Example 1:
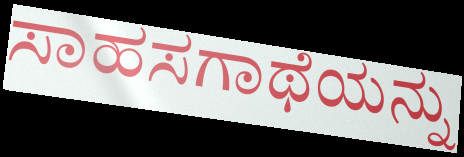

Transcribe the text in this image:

ಸಾಹಸಗಾಥೆಯನ್ನು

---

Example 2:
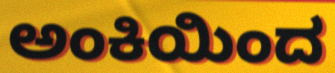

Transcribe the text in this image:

ಅಂಕಿಯಿಂದ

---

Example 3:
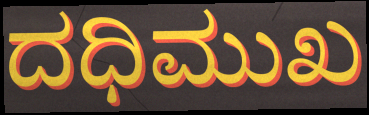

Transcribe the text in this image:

ದಧಿಮುಖ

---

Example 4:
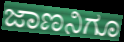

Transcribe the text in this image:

ಜಾಣನಿಗೂ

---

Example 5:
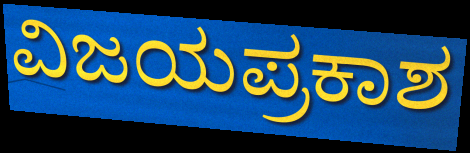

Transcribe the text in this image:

ವಿಜಯಪ್ರಕಾಶ